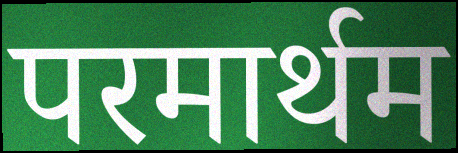
परमार्थम